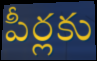
పీర్లకు